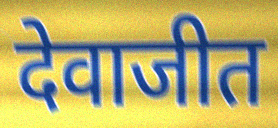
देवाजीत